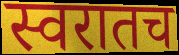
स्वरातच